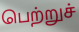
பெற்றுச்